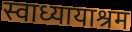
स्वाध्यायाश्रम